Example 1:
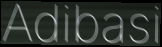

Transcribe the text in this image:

Adibasi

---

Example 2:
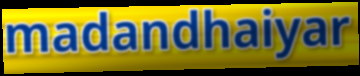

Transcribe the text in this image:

madandhaiyar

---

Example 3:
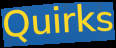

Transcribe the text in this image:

Quirks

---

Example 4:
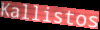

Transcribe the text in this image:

Kallistos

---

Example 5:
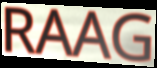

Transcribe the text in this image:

RAAG